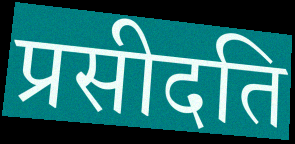
प्रसीदति